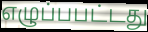
எழுப்பபட்டது